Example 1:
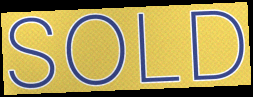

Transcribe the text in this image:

SOLD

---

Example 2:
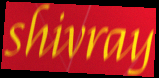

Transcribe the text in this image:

shivray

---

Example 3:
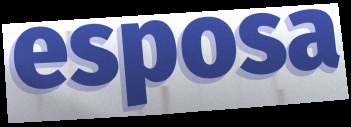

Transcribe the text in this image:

esposa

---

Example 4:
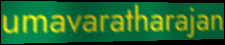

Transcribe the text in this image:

umavaratharajan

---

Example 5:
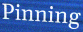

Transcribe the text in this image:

Pinning